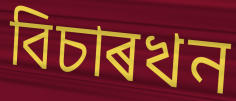
বিচাৰখন